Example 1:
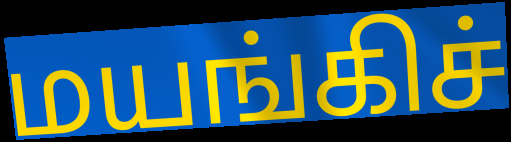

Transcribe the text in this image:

மயங்கிச்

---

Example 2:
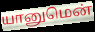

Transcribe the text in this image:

யானுமென்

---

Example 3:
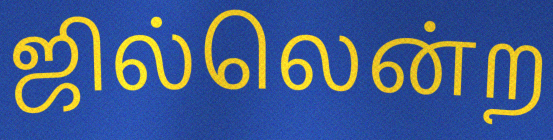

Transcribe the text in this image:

ஜில்லென்ற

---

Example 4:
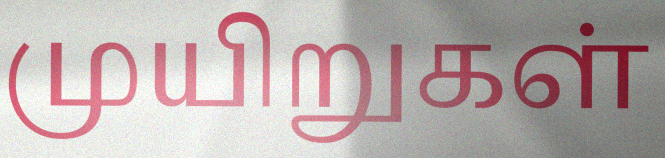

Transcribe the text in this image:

முயிறுகள்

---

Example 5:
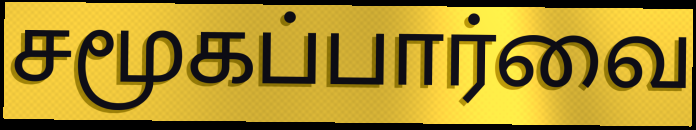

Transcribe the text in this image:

சமூகப்பார்வை